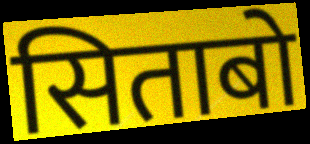
सिताबो